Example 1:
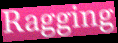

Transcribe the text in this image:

Ragging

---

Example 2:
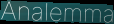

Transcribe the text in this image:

Analemma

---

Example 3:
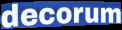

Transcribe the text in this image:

decorum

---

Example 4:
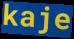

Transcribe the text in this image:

kaje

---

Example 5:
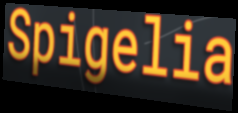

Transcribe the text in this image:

Spigelia